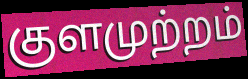
குளமுற்றம்